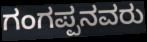
ಗಂಗಪ್ಪನವರು